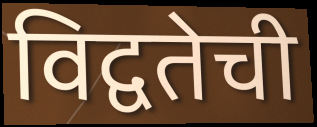
विद्वतेची